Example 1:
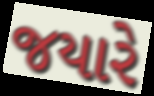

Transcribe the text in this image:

જયારે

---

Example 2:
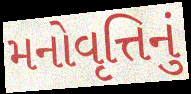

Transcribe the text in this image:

મનોવૃત્તિનું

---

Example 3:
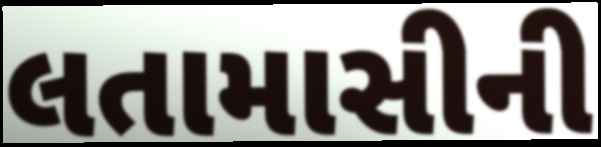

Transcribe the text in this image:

લતામાસીની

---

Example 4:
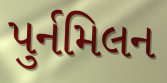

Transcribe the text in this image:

પુર્નમિલન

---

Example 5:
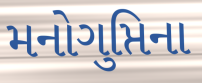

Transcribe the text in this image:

મનોગુપ્તિના